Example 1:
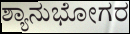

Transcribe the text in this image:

ಶ್ಯಾನುಭೋಗರ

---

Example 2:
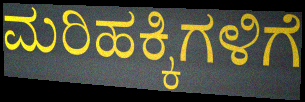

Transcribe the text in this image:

ಮರಿಹಕ್ಕಿಗಳಿಗೆ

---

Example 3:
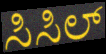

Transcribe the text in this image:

ಸಿಸಿಲ್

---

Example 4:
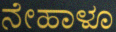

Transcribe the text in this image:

ನೇಹಾಳೂ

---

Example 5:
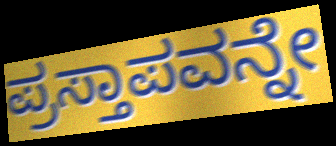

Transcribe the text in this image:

ಪ್ರಸ್ತಾಪವನ್ನೇ